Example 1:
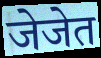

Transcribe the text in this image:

जेजेत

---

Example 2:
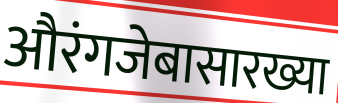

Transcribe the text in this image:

औरंगजेबासारख्या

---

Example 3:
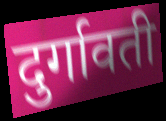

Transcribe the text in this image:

दुर्गावती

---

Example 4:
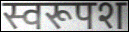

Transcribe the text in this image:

स्वरूपश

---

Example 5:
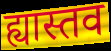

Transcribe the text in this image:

ह्यास्तव